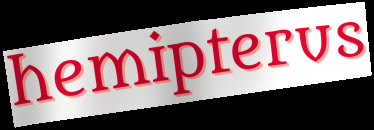
hemipterus